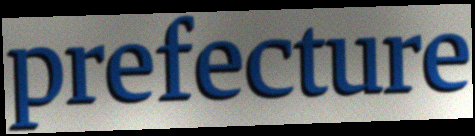
prefecture